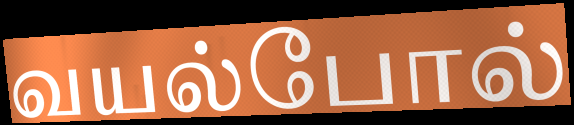
வயல்போல்